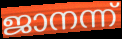
ജാനന്ന്